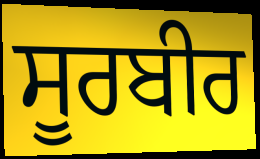
ਸੂਰਬੀਰ